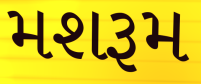
મશરૂમ